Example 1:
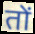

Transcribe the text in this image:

तों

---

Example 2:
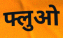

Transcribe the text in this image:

फ्लुओ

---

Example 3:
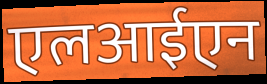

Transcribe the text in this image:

एलआईएन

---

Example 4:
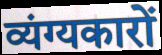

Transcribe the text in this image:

व्‍यंग्‍यकारों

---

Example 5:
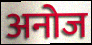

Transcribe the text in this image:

अनोज